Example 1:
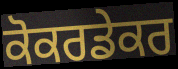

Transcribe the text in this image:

ਕੋਕਰਡੇਕਰ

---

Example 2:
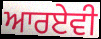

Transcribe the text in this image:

ਆਰਏਵੀ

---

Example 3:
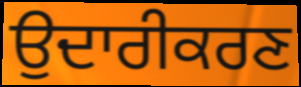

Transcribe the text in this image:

ਉਦਾਰੀਕਰਣ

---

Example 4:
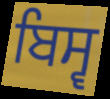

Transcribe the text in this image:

ਬਿਸ੍ਵ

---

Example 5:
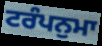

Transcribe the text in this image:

ਟਰੰਪਨੁਮਾ